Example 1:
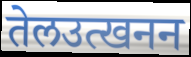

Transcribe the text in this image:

तेलउत्खनन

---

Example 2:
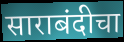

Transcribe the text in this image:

साराबंदीचा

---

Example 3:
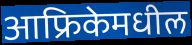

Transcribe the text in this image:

आफ्रिकेमधील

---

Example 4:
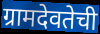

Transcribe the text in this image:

ग्रामदेवतेची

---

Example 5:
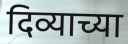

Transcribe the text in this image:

दिव्याच्या